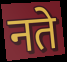
नते